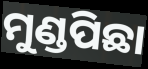
ମୁଣ୍ଡପିଛା